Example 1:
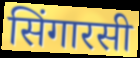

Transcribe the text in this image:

सिंगारसी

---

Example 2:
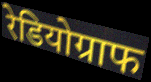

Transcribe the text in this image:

रेडियोग्राफ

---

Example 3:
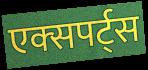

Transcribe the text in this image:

एक्‍सपर्ट्स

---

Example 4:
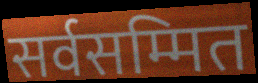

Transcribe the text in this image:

सर्वसम्मित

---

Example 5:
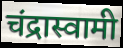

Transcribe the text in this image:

चंद्रास्वामी